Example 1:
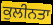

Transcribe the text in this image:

ਕੁਲੀਨਤਾ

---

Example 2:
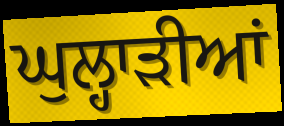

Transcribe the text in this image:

ਘੁਲ੍ਹਾੜੀਆਂ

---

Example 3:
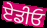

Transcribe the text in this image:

ਏਡੀਓ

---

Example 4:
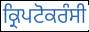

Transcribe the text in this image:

ਕ੍ਰਿਪਟੋਕਰੰਸੀ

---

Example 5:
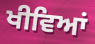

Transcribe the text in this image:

ਖੀਵਿਆਂ